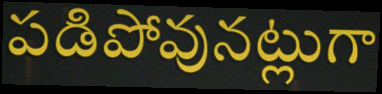
పడిపోవునట్లుగా